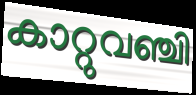
കാറ്റുവഞ്ചി